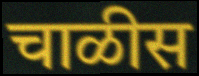
चाळीस